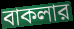
বাকলার